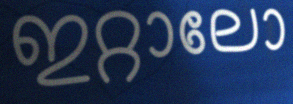
ഇറ്റാലോ